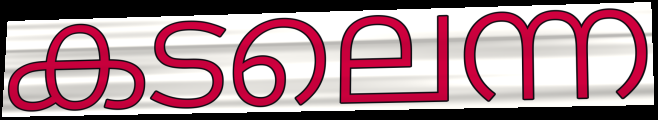
കടലെന്ന